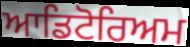
ਆਡਿਟੋਰਿਅਮ